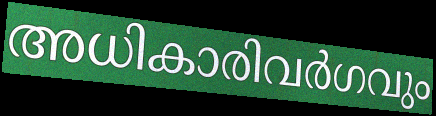
അധികാരിവർഗവും